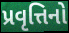
પ્રવૃત્તિનો